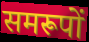
समरूपों